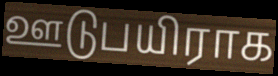
ஊடுபயிராக